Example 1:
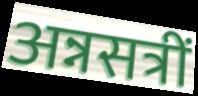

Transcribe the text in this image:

अन्नसत्रीं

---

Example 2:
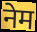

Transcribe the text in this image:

नेम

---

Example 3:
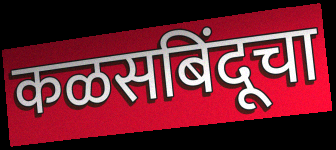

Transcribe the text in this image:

कळसबिंदूचा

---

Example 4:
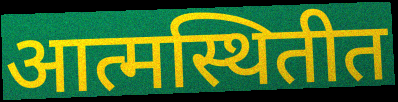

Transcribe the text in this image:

आत्मस्थितीत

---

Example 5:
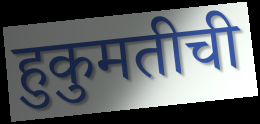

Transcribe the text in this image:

हुकुमतीची